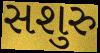
સશુરુ